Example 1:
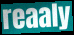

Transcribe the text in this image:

reaaly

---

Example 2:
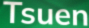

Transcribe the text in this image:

Tsuen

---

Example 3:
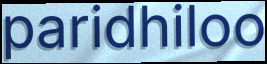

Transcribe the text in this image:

paridhiloo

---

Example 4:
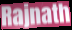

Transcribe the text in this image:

Rajnath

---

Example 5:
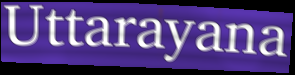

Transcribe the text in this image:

Uttarayana